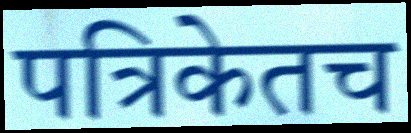
पत्रिकेतच